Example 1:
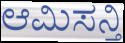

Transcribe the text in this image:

ಆಮಿಸನ್ತಿ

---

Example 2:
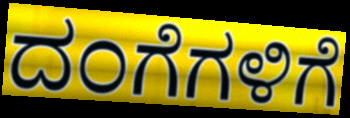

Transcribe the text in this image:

ದಂಗೆಗಳಿಗೆ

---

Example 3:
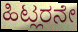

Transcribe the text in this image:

ಹಿಟ್ಲರನೇ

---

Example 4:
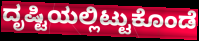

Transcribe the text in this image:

ದೃಷ್ಟಿಯಲ್ಲಿಟ್ಟುಕೊಂಡೆ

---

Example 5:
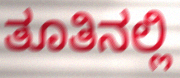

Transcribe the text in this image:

ತೂತಿನಲ್ಲಿ